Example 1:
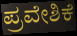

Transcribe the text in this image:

ಪ್ರವೇಶಿಕೆ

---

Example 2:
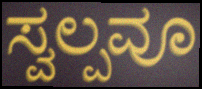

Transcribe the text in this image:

ಸ್ವಲ್ಪವೂ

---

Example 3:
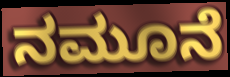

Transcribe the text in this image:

ನಮೂನೆ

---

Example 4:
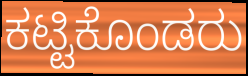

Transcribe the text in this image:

ಕಟ್ಟಿಕೊಂಡರು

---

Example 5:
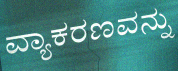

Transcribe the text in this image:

ವ್ಯಾಕರಣವನ್ನು